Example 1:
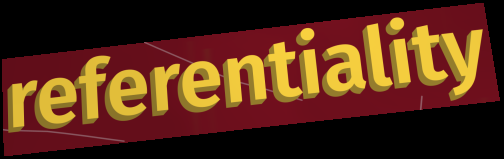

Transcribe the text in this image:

referentiality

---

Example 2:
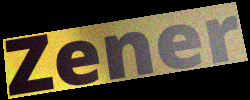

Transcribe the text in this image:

Zener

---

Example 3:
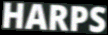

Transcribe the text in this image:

HARPS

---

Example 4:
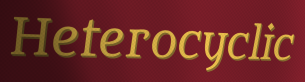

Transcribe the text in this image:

Heterocyclic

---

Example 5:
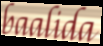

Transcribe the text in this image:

baalida